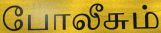
போலீசும்